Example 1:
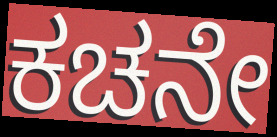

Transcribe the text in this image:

ಕಚನೇ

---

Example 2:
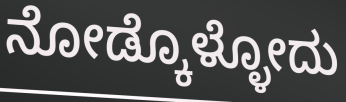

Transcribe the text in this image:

ನೋಡ್ಕೊಳ್ಳೋದು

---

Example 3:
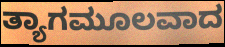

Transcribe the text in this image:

ತ್ಯಾಗಮೂಲವಾದ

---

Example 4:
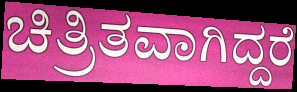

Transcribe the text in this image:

ಚಿತ್ರಿತವಾಗಿದ್ದರೆ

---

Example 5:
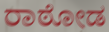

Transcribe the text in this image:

ರಾಠೋಡ